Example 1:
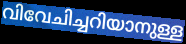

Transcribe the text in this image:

വിവേചിച്ചറിയാനുള്ള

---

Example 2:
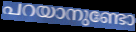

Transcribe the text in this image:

പറയാനുണ്ടോ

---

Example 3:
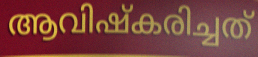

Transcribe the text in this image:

ആവിഷ്കരിച്ചത്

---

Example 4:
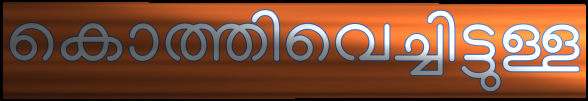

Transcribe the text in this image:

കൊത്തിവെച്ചിട്ടുള്ള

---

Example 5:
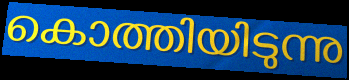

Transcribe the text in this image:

കൊത്തിയിടുന്നു